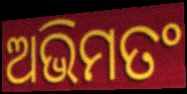
ଅଭିମତଂ